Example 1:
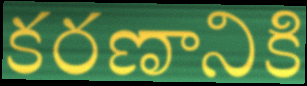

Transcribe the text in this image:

కరణానికి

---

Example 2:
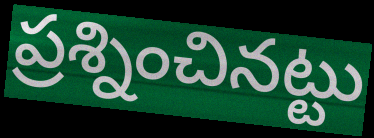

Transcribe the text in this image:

ప్రశ్నించినట్టు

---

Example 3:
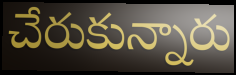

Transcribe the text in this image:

చేరుకున్నారు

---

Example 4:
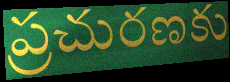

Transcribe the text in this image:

ప్రచురణకు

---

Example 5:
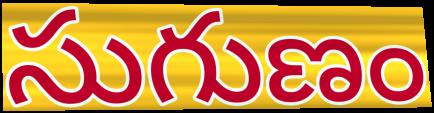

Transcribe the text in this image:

సుగుణం